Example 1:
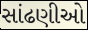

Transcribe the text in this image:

સાંઢણીઓ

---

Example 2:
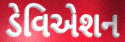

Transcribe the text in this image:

ડેવિએશન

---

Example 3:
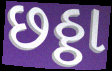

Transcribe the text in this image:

છઠ્ઠા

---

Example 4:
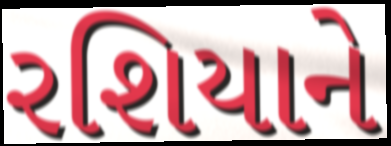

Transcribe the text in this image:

રશિયાને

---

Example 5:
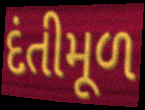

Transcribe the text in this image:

દંતીમૂળ